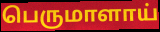
பெருமாளாய்